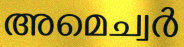
അമെച്വർ